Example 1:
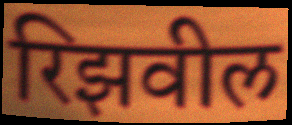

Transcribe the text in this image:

रिझवील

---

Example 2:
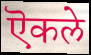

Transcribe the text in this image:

ऎकले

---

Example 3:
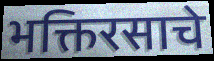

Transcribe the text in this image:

भक्तिरसाचे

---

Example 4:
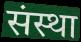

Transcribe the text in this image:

संस्था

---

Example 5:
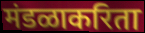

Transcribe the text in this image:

मंडळाकरिता